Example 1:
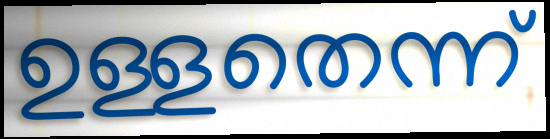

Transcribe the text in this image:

ഉള്ളതെന്ന്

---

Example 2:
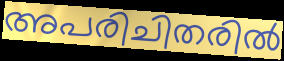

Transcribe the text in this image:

അപരിചിതരിൽ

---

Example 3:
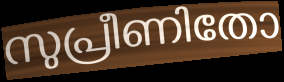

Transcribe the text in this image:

സുപ്രീണിതോ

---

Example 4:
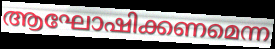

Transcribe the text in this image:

ആഘോഷിക്കണമെന്ന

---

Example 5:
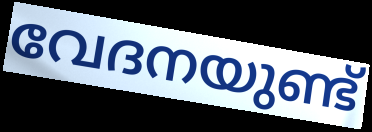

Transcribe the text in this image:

വേദനയുണ്ട്